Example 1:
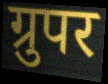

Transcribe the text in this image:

ग्रुपर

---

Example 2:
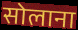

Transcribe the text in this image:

सोलाना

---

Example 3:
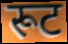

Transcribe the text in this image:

रूट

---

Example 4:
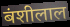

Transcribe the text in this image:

बंशीलाल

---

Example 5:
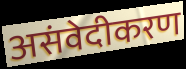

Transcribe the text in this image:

असंवेदीकरण